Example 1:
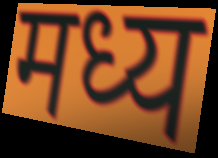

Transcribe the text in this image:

मध्य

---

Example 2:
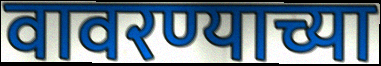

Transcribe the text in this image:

वावरण्याच्या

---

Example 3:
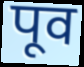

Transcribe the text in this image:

पूव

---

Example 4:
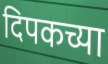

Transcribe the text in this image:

दिपकच्या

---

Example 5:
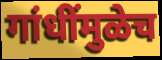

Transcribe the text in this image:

गांधींमुळेच